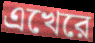
এখেরে